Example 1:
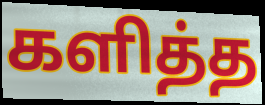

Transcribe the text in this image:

களித்த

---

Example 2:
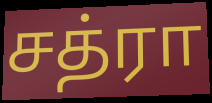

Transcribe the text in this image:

சத்ரா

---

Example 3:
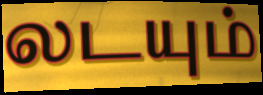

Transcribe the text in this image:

லடயும்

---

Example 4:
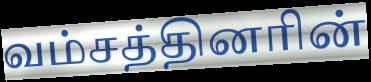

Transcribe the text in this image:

வம்சத்தினரின்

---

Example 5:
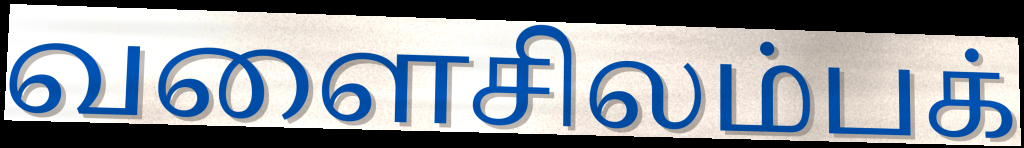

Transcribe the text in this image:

வளைசிலம்பக்